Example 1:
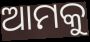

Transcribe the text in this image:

ଆମକୁ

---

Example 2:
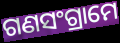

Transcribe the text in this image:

ଗଣସଂଗ୍ରାମେ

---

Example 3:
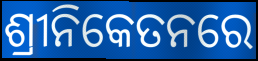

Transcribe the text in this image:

ଶ୍ରୀନିକେତନରେ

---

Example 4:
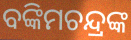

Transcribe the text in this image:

ବଙ୍କିମଚନ୍ଦ୍ରଙ୍କ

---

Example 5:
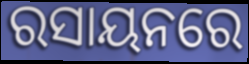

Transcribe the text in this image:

ରସାୟନରେ